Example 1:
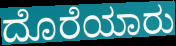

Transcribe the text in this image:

ದೊರೆಯಾರು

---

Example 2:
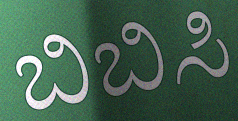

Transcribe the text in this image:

ಬಿಬಿಸಿ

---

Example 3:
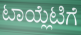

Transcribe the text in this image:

ಟಾಯ್ಲೆಟಿಗೆ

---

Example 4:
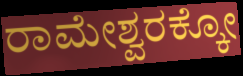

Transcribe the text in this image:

ರಾಮೇಶ್ವರಕ್ಕೋ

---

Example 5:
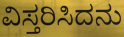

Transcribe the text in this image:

ವಿಸ್ತರಿಸಿದನು